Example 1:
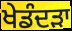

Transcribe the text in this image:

ਖੇਡੰਦੜਾ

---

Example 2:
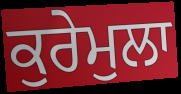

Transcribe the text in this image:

ਕੁਰੇਮੁਲਾ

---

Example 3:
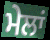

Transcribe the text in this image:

ਮੇਲਾਂ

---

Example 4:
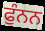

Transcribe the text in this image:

ਫੁੰਨਨ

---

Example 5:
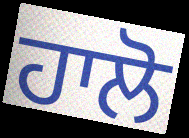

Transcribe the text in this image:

ਹਾਲੋ